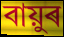
বায়ুৰ